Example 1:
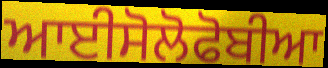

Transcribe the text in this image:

ਆਈਸੋਲੋਫੋਬੀਆ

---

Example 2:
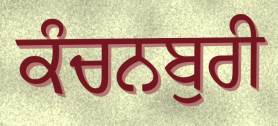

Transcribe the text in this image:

ਕੰਚਨਬੁਰੀ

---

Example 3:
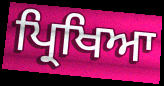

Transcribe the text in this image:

ਪ੍ਰਿਖਿਆ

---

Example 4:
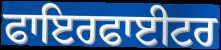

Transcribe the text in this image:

ਫਾਇਰਫਾਈਟਰ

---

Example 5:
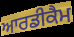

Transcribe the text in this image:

ਆਰਡੀਕੈਮ